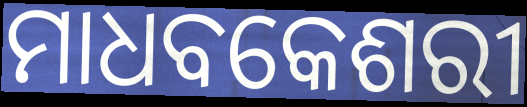
ମାଧବକେଶରୀ